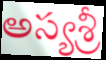
అస్యశ్రీ